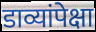
डाव्यांपेक्षा